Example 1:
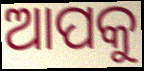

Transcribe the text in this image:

ଆପକୁ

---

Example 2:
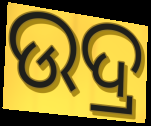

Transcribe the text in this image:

ଉଦ୍ର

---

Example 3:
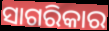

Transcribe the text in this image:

ସାଗରିକାର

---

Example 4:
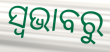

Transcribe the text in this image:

ସ୍ୱଭାବରୁ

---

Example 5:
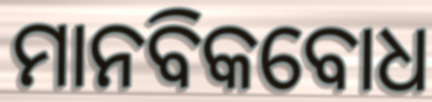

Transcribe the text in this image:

ମାନବିକବୋଧ